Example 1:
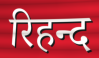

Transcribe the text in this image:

रिहन्द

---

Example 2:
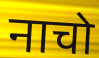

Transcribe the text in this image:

नाचो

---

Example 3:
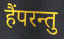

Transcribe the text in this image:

हैंपरन्तु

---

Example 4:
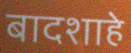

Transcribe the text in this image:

बादशाहे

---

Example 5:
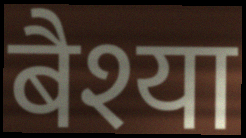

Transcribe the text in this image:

बैश्या